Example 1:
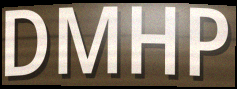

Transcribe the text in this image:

DMHP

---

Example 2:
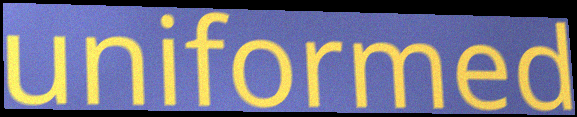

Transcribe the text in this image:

uniformed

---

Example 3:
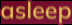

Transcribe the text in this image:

asleep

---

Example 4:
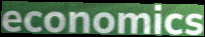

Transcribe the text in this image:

economics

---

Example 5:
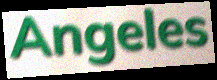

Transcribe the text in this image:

Angeles